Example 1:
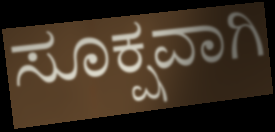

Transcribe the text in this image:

ಸೂಕ್ಷವಾಗಿ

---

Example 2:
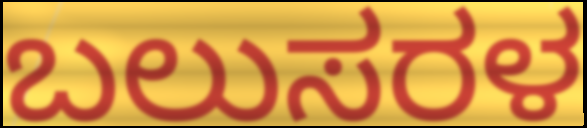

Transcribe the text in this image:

ಬಲುಸರಳ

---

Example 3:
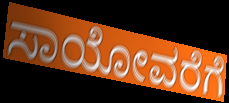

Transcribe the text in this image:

ಸಾಯೋವರೆಗೆ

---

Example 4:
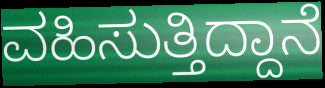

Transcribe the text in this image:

ವಹಿಸುತ್ತಿದ್ದಾನೆ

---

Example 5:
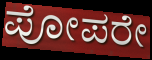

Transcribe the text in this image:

ಪೋಪರೇ